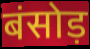
बंसोड़